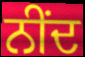
ਨੀਂਦ